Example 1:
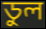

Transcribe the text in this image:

ডুল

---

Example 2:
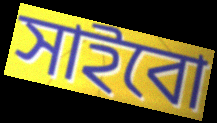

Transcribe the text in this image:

সাইবো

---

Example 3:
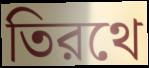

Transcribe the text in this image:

তিরথে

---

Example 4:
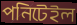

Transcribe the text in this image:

পনিটেইল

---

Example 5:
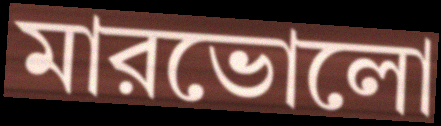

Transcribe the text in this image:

মারভোলো